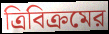
ত্রিবিক্রমের